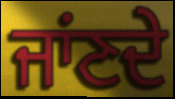
ਜਾਂਣਦੇ